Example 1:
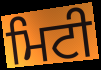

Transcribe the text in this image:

ਮਿਟੀ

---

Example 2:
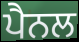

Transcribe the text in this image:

ਪੈਨਲ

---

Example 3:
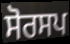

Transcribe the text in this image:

ਸੋਰਸਪ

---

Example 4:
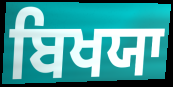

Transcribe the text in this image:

ਬਿਖਯਾ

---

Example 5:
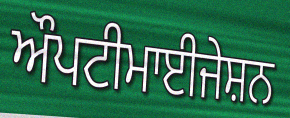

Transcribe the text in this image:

ਔਪਟੀਮਾਈਜੇਸ਼ਨ